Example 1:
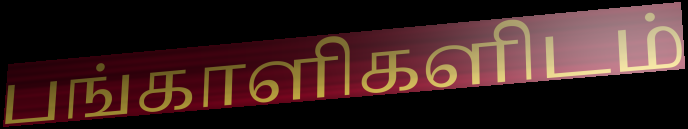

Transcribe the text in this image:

பங்காளிகளிடம்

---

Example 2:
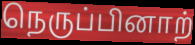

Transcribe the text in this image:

நெருப்பினாற்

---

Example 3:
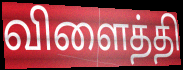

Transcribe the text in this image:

விளைத்தி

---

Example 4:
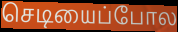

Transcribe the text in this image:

செடியைப்போல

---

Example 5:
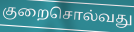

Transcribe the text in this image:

குறைசொல்வது